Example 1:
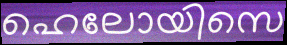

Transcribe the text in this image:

ഹെലോയിസെ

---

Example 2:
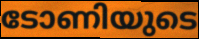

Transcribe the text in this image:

ടോണിയുടെ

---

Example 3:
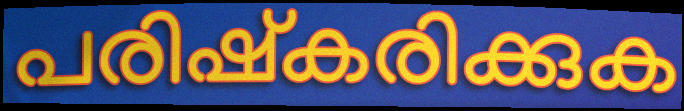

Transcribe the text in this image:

പരിഷ്കരിക്കുക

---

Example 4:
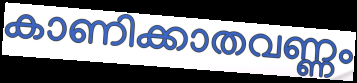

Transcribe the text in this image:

കാണിക്കാതവണ്ണം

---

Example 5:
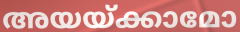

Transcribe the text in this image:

അയയ്ക്കാമോ